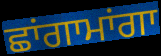
ਛਾਂਗਾਮਾਂਗਾ